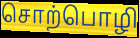
சொற்பொழி